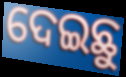
ଦେଇଛୁ